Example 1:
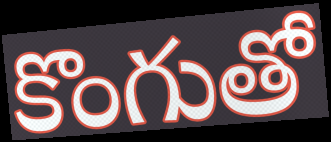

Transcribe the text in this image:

కొంగుతో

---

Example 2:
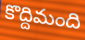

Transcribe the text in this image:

కొద్దిమంది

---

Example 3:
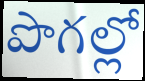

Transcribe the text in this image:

పొగల్లో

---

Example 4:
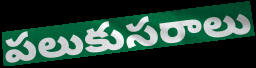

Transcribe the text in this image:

పలుకుసరాలు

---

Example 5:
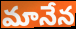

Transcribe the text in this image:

మానేన